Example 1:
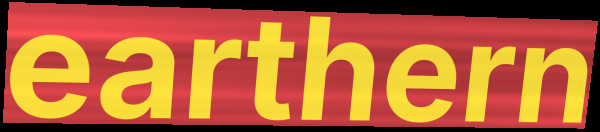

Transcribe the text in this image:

earthern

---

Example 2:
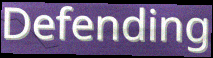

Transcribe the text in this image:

Defending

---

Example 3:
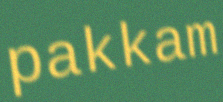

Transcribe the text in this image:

pakkam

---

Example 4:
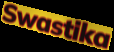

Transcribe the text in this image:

Swastika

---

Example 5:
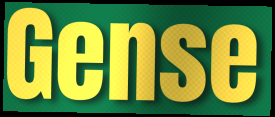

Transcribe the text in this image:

Gense